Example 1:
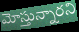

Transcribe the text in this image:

మోస్తున్నారని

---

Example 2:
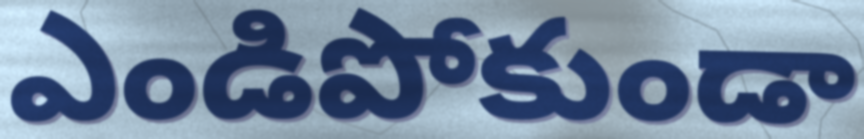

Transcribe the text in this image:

ఎండిపోకుండా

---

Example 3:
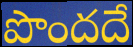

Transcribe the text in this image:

పొందదే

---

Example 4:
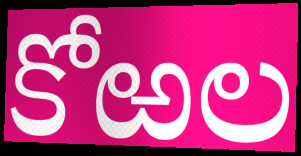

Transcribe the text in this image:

కోఱల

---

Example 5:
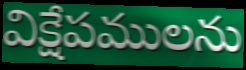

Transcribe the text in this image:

విక్షేపములను